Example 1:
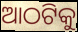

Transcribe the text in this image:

ଆଠଟିକୁ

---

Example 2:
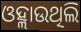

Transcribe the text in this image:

ଓହ୍ଲାଉଥିଲି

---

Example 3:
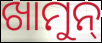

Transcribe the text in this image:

ଖାମୁନ୍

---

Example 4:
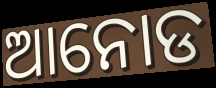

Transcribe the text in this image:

ଆନୋଡ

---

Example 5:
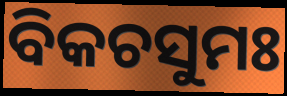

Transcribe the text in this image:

ବିକଚସୁମଃ